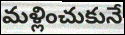
మళ్లించుకునే